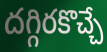
దగ్గిరకొచ్చే